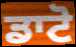
ਡਾਟੋ